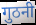
गुठनी